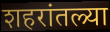
शहरांतल्या